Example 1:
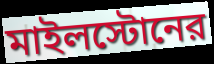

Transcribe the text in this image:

মাইলস্টোনের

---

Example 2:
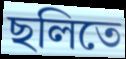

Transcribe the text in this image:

ছলিতে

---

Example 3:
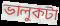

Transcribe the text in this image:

ভালুকটা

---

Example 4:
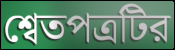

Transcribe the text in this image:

শ্বেতপত্রটির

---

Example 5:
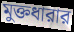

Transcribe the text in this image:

মুক্তধারার